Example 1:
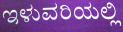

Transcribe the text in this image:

ಇಳುವರಿಯಲ್ಲಿ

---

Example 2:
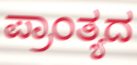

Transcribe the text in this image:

ಪ್ರಾಂತ್ಯದ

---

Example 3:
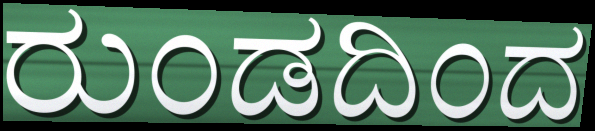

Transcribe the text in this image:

ರುಂಡದಿಂದ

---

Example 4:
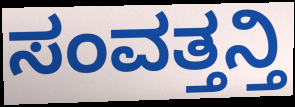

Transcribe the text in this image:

ಸಂವತ್ತನ್ತಿ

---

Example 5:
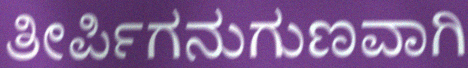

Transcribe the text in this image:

ತೀರ್ಪಿಗನುಗುಣವಾಗಿ